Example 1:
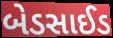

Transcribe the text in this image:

બેડસાઈડ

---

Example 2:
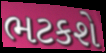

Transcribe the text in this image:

ભટકશે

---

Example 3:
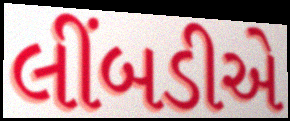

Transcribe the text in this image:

લીંબડીએ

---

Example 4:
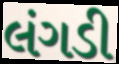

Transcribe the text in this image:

લંગડી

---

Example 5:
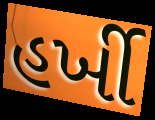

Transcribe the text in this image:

હર્ખી